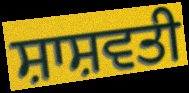
ਸ਼ਾਸ਼ਵਤੀ